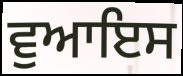
ਵੁਆਇਸ